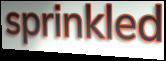
sprinkled